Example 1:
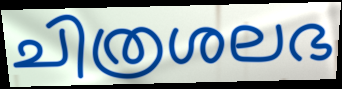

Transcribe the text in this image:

ചിത്രശലഭ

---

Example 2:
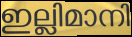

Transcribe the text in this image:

ഇല്ലിമാനി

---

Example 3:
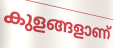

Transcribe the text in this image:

കുളങ്ങളാണ്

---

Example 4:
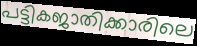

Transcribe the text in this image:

പട്ടികജാതിക്കാരിലെ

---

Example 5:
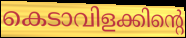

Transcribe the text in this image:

കെടാവിളക്കിന്റെ